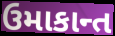
ઉમાકાન્ત